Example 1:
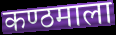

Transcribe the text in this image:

कण्ठमाला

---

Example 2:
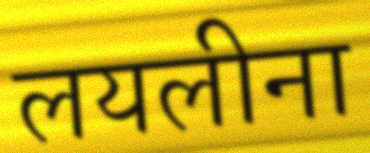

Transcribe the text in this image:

लयलीना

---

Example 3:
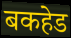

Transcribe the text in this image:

बकहेड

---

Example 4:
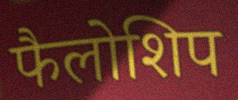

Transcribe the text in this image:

फैलोशिप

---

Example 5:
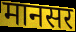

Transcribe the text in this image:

मानसर